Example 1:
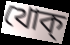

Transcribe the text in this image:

থোক্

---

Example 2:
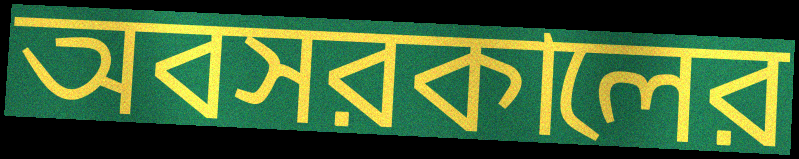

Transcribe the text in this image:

অবসরকালের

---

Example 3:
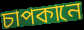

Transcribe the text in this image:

চাপকানে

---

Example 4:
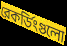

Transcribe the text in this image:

রেকর্ডিংগুলো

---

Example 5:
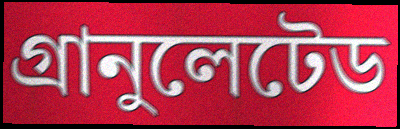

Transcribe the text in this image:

গ্রানুলেটেড